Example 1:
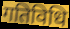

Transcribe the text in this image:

गतिविधि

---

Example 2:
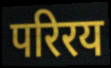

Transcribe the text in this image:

परिरय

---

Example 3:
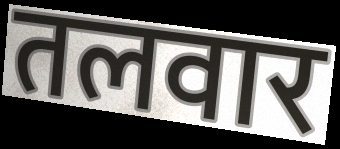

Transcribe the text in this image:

तलवार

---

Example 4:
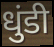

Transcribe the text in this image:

धुंडी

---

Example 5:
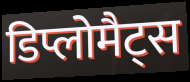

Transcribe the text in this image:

डिप्लोमैट्स